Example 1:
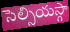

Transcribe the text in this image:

సెల్సియస్గా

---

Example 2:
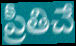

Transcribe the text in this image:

ప్రీతిచే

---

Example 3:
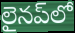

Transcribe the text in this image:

లైనప్‌లో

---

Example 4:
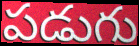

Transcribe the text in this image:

పడుగు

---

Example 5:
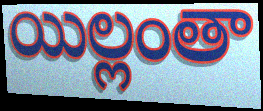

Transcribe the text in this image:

యిల్లంతా